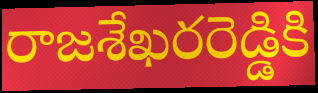
రాజశేఖరరెడ్డికి